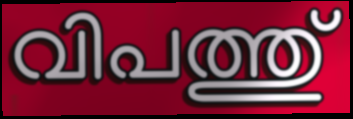
വിപത്തു്